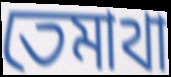
তেমাথা